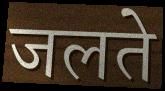
जलते